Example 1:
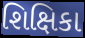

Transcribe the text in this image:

શિક્ષિકા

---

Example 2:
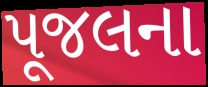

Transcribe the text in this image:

પૂજલના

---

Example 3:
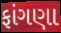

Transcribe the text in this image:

ફાંગણા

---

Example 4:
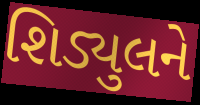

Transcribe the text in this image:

શિડ્યુલને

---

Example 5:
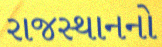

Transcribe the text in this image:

રાજસ્થાનનો